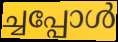
ച്ചപ്പോൾ